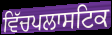
ਵਿੱਚਪਲਾਸਟਿਕ